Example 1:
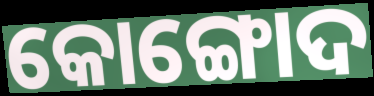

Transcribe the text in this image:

କୋଙ୍ଗୋଦ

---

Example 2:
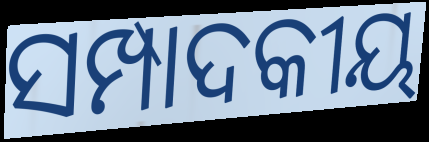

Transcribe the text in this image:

ସମ୍ପାଦକୀୟ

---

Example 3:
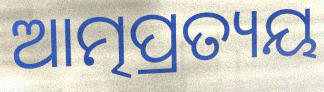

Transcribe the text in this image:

ଆତ୍ମପ୍ରତ୍ୟୟ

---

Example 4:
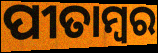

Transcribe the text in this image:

ପୀତାମ୍ୱର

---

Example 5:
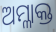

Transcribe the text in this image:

ଅମ୍ଳାକ୍ତ